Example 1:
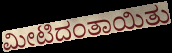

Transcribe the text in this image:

ಮೀಟಿದಂತಾಯಿತು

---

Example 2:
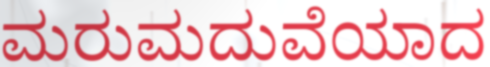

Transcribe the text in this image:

ಮರುಮದುವೆಯಾದ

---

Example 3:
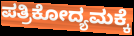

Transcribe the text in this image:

ಪತ್ರಿಕೋದ್ಯಮಕ್ಕೆ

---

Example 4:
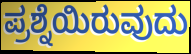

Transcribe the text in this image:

ಪ್ರಶ್ನೆಯಿರುವುದು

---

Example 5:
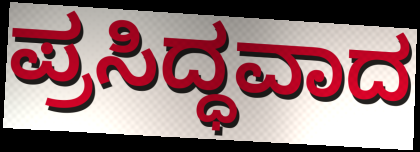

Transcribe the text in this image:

ಪ್ರಸಿದ್ಧವಾದ